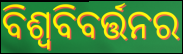
ବିଶ୍ଵବିବର୍ତ୍ତନର